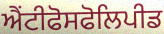
ਐਂਟੀਫੋਸਫੋਲਿਪੀਡ